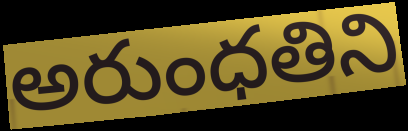
అరుంధతిని